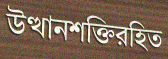
উত্থানশক্তিরহিত